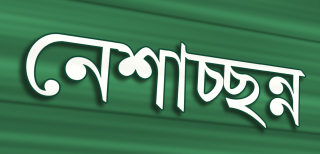
নেশাচ্ছন্ন